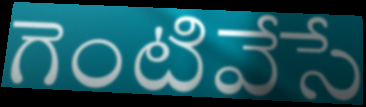
గెంటివేసే